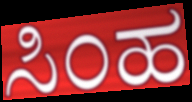
ಸಿಂಹ